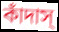
কাঁদাস্